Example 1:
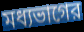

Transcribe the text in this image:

মধ্যভাগের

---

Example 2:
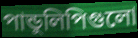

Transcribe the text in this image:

পান্ডুলিপিগুলো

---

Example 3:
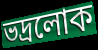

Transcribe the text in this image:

ভদ্রলোক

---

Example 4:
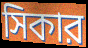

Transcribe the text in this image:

সিকার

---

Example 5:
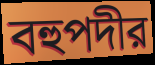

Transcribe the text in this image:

বহুপদীর